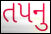
તપનુ